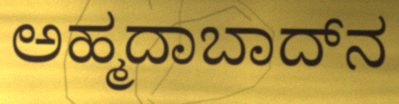
ಅಹ್ಮದಾಬಾದ್‌ನ